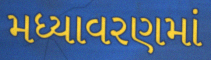
મધ્યાવરણમાં